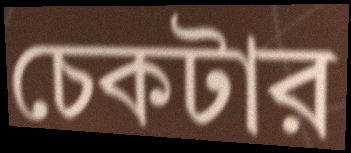
চেকটার